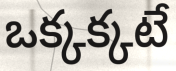
ఒక్కక్కటే